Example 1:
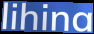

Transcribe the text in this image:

lihina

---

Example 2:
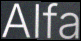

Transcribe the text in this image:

Alfa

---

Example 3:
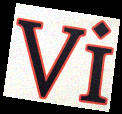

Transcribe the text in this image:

Vi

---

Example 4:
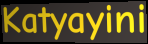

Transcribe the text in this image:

Katyayini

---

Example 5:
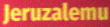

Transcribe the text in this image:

Jeruzalemu